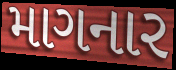
માગનાર